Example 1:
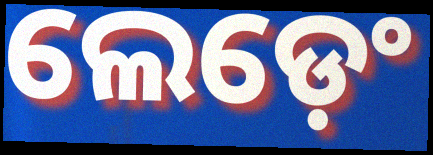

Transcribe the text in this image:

ଲେଡ଼େଂ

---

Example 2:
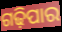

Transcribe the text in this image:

ଗଢ଼ିପାର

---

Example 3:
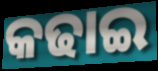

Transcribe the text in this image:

କଢାଇ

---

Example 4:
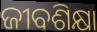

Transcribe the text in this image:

ଜୀବଶିକ୍ଷା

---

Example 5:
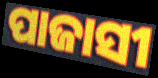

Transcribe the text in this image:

ପାଜାସୀ